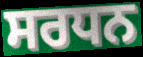
ਸਰਧਨ